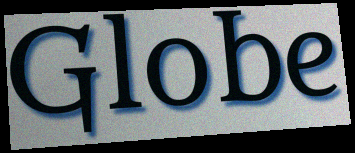
Globe